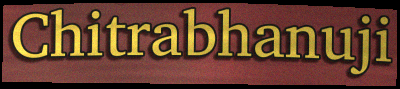
Chitrabhanuji